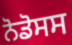
ਨੋਡੋਸਸ